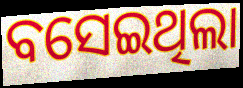
ବସେଇଥିଲା